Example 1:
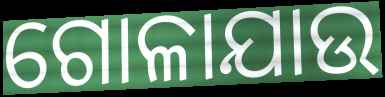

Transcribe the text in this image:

ଗୋଳାଯାଉ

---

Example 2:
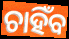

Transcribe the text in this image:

ଚାହିଁବ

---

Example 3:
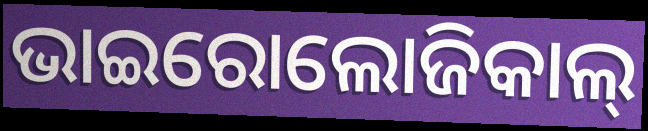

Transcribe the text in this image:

ଭାଇରୋଲୋଜିକାଲ୍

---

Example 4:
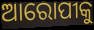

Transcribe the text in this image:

ଆରୋପୀକୁ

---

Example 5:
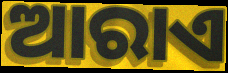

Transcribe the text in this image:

ଆରାଏ